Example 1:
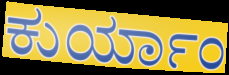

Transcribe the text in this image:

ಕುರ್ಯಾಂ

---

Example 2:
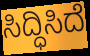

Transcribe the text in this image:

ಸಿದ್ಧಿಸಿದೆ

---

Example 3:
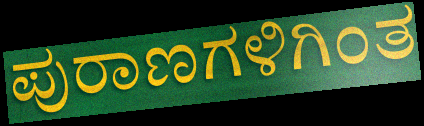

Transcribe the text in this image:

ಪುರಾಣಗಳಿಗಿಂತ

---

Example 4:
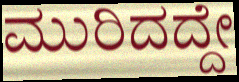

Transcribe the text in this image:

ಮುರಿದದ್ದೇ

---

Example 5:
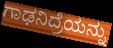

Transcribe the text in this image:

ಗಾಢನಿದ್ರೆಯನ್ನು